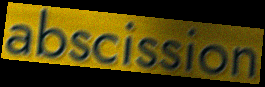
abscission